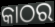
କାଠର